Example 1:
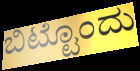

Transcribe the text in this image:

ಬಿಟ್ಟೊಂದು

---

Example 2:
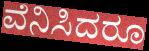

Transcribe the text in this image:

ವೆನಿಸಿದರೂ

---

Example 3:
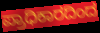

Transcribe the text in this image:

ಪ್ರಾಧಿಕಾರದಿಂದ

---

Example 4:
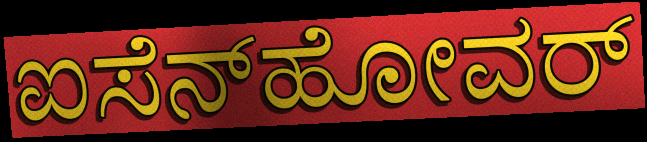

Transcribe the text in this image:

ಐಸೆನ್‍ಹೋವರ್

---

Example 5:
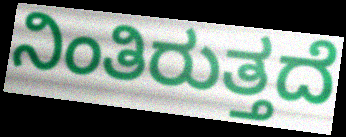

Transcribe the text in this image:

ನಿಂತಿರುತ್ತದೆ